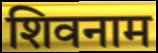
शिवनाम